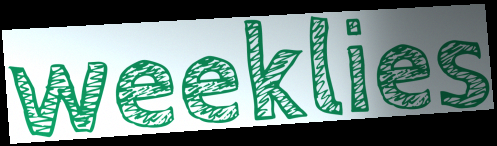
weeklies